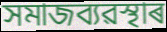
সমাজব্যৱস্থাৰ